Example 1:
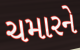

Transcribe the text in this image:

ચમારને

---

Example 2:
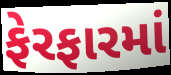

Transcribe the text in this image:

ફેરફારમાં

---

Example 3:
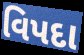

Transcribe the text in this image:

વિપદા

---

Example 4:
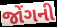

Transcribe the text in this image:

જોંગની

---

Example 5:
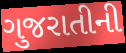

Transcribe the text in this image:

ગુજરાતીની